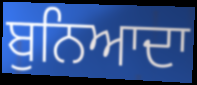
ਬੁਨਿਆਦਾ